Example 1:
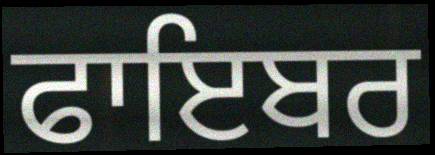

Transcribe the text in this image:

ਫਾਇਬਰ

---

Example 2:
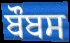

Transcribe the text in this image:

ਬੌਬਸ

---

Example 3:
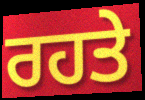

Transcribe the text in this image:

ਰਹਤੇ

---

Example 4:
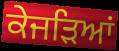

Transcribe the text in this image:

ਕੇਜੜਿਆਂ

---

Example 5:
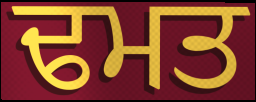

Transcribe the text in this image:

ਢਮਤ